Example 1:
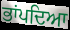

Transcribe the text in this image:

ਭਾਂਪਦਿਆ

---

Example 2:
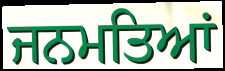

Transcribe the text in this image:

ਜਨਮਤਿਆਂ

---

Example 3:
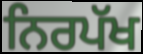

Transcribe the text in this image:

ਨਿਰਪੱਖ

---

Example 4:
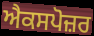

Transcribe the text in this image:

ਐਕਸਪੋਜ਼ਰ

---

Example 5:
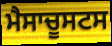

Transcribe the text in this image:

ਮੈਸਾਚੂਸਟਸ